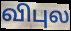
விபுல